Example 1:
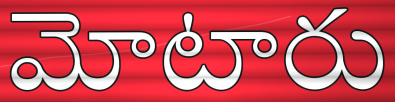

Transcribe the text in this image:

మోటారు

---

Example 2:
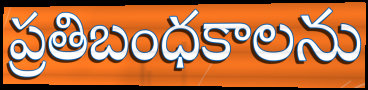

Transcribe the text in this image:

ప్రతిబంధకాలను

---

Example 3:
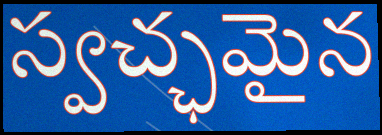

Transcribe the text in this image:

స్వచ్ఛమైన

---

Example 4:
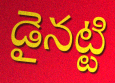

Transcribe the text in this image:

డైనట్టి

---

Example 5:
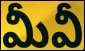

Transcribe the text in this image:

మీవీ